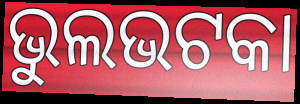
ଭୁଲଭଟକା